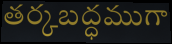
తర్కబద్ధముగా